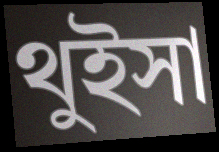
থুইসা